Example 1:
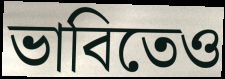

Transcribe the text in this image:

ভাবিতেও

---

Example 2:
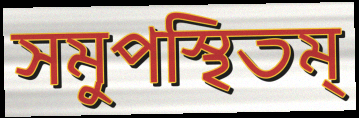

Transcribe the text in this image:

সমুপস্থিতম্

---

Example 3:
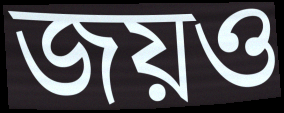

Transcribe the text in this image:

জয়ও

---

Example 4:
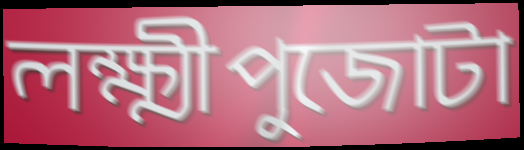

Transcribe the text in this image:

লক্ষ্মীপুজোটা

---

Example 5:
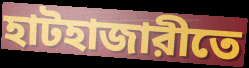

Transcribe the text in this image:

হাটহাজারীতে